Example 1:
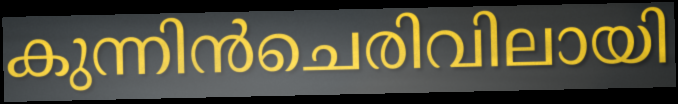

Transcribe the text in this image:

കുന്നിൻചെരിവിലായി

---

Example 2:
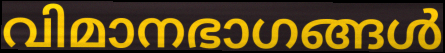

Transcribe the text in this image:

വിമാനഭാഗങ്ങൾ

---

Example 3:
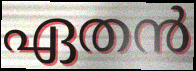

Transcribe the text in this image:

ഏതൻ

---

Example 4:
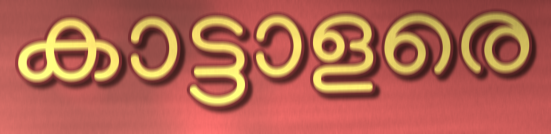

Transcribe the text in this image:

കാട്ടാളരെ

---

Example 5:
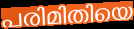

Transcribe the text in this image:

പരിമിതിയെ